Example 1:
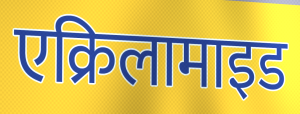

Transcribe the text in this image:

एक्रिलामाइड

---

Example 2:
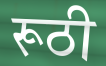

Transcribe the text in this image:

रूठी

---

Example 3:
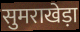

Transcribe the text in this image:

सुमराखेड़ा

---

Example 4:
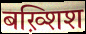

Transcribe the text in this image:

बख़्शिश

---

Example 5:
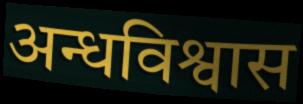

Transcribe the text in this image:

अन्धविश्वास